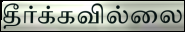
தீர்க்கவில்லை